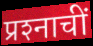
प्रश्नाचीं